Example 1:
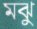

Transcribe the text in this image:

মঝু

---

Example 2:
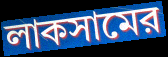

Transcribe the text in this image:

লাকসামের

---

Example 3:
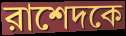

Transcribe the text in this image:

রাশেদকে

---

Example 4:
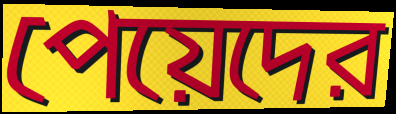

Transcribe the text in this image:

পেয়েদের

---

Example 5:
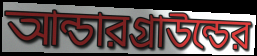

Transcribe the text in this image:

আন্ডারগ্রাউন্ডের